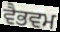
ਵੈਭਵਮ